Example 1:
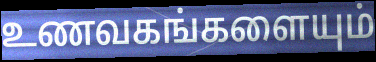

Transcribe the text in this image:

உணவகங்களையும்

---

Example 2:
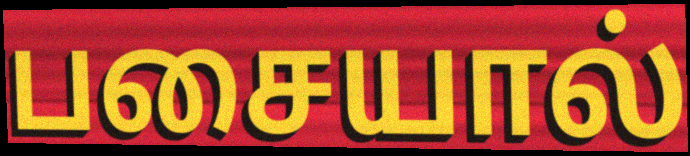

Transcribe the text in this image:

பசையால்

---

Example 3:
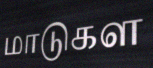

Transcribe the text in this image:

மாடுகள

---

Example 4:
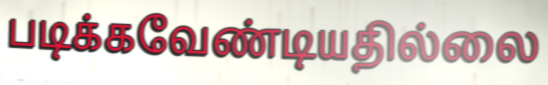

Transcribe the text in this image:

படிக்கவேண்டியதில்லை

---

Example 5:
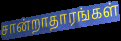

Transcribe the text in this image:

சான்றாதாரங்கள்